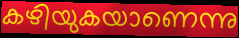
കഴിയുകയാണെന്നു